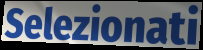
Selezionati